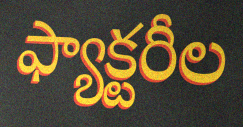
ఫ్యాక్టరీల